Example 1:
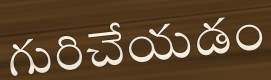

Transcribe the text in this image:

గురిచేయడం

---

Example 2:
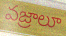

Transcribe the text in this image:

వజ్రాలూ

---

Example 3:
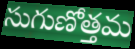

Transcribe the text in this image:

సుగుణోత్తమ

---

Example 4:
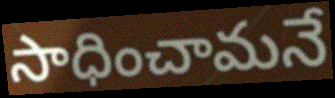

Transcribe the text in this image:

సాధించామనే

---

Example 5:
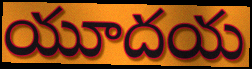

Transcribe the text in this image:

యూదయ